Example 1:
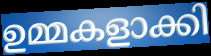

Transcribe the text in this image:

ഉമ്മകളാക്കി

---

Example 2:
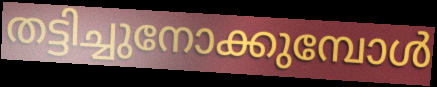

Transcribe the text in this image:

തട്ടിച്ചുനോക്കുമ്പോൾ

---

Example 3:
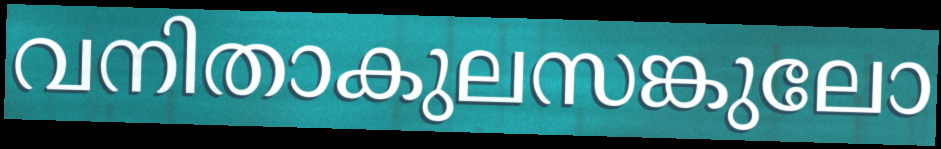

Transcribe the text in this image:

വനിതാകുലസങ്കുലോ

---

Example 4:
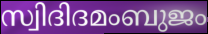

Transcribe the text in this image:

സ്വിദിദമംബുജം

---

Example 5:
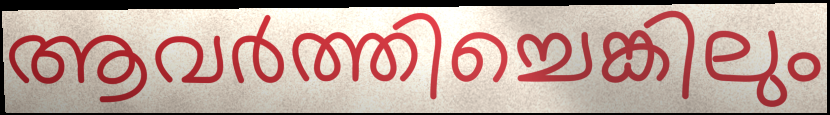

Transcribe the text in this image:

ആവർത്തിച്ചെങ്കിലും